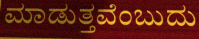
ಮಾಡುತ್ತವೆಂಬುದು